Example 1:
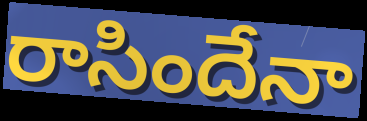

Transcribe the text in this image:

రాసిందేనా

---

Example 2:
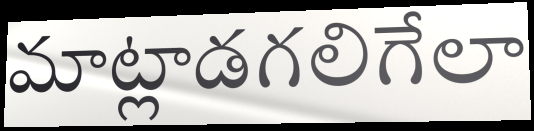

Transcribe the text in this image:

మాట్లాడగలిగేలా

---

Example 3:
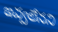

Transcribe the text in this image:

ఇవ్వలేనని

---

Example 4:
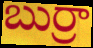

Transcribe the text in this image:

బుర్రా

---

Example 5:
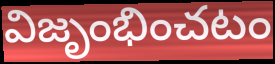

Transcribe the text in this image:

విజృంభించటం